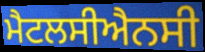
ਮੈਟਲਸੀਐਨਸੀ